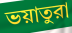
ভয়াতুরা